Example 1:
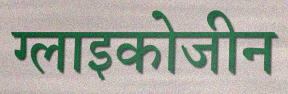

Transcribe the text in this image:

ग्लाइकोजीन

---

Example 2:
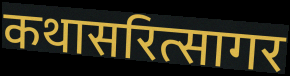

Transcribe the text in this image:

कथासरित्सागर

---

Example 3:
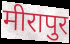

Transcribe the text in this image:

मीरापुर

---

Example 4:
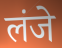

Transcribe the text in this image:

लंजे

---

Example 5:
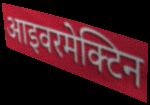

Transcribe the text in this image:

आइवरमेक्टिन